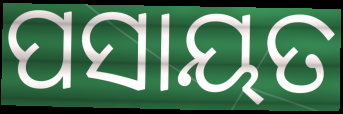
ପସାୟତ